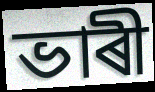
ভাৰী